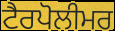
ਟੈਰਪੋਲੀਮਰ